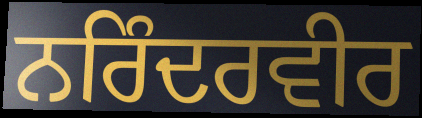
ਨਰਿੰਦਰਵੀਰ